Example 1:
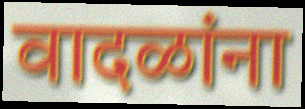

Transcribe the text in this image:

वादळांना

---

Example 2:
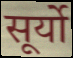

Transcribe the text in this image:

सूर्यो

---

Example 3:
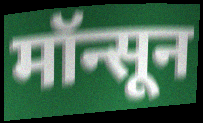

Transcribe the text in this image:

मॉन्सून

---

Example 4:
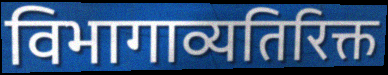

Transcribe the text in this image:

विभागाव्यतिरिक्त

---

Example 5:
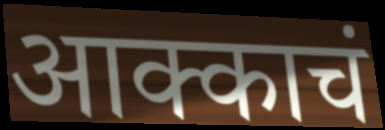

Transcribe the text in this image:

आक्काचं